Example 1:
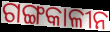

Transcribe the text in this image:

ଗଙ୍ଗକାଳୀନ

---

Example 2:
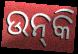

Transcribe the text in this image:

ଉନ୍‌କି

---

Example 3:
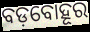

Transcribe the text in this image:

ବଡ଼ବୋହୂର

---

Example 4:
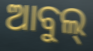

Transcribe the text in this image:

ଆବୁଲ୍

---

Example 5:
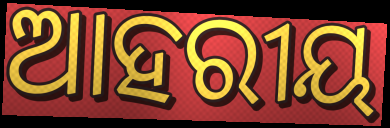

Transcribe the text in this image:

ଆହରୀୟ